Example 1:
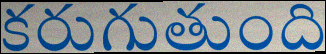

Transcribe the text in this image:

కరుగుతుంది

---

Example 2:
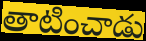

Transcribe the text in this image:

తాటించాడు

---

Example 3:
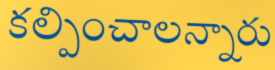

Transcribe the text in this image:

కల్పించాలన్నారు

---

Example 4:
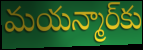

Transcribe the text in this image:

మయన్మార్‌కు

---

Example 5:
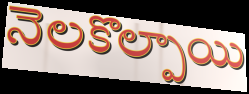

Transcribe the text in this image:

నెలకొల్పాయి